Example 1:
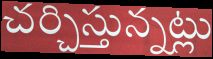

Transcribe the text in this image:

చర్చిస్తున్నట్లు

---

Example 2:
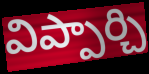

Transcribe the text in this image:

విప్పార్చి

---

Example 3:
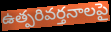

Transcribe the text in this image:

ఉత్పరివర్తనాలపై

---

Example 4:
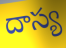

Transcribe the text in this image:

దాస్య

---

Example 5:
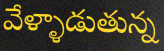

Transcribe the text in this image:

వేళ్ళాడుతున్న